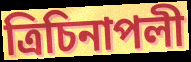
ত্রিচিনাপলী